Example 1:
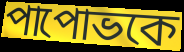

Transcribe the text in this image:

পাপোভকে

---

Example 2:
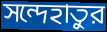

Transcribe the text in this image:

সন্দেহাতুর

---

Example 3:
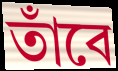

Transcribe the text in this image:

তাঁবে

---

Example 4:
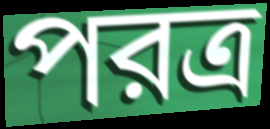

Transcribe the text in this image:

পরত্র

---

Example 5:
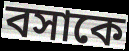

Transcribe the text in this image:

বসাকে